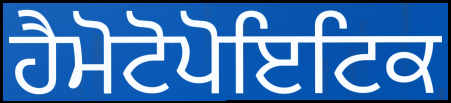
ਹੈਮੋਟੋਪੋਇਟਿਕ